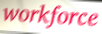
workforce